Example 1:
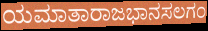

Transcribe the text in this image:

ಯಮಾತಾರಾಜಭಾನಸಲಗಂ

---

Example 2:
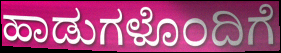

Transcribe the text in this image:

ಹಾಡುಗಳೊಂದಿಗೆ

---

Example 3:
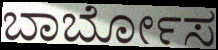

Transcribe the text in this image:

ಬಾರ್ಬೋಸ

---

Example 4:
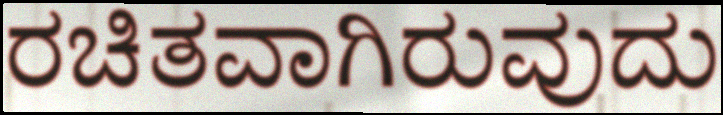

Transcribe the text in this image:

ರಚಿತವಾಗಿರುವುದು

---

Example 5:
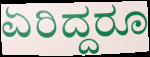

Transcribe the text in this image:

ಏರಿದ್ದರೂ